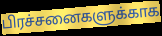
பிரச்சனைகளுக்காக